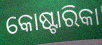
କୋଷ୍ଟାରିକା